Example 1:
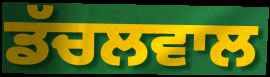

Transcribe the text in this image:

ਡੱਚਲਵਾਲ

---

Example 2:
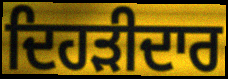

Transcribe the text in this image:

ਦਿਹੜੀਦਾਰ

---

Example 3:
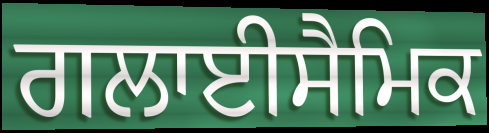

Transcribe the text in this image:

ਗਲਾਈਸੈਮਿਕ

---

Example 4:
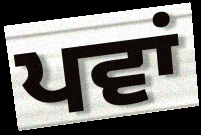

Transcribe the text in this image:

ਪਵਾਂ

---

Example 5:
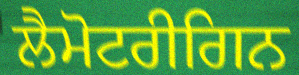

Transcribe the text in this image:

ਲੈਮੋਟਰੀਗਿਨ